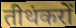
तीथंकरों